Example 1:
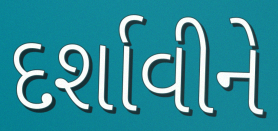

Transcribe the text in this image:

દર્શાવીને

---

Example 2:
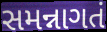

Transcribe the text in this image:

સમન્નાગતં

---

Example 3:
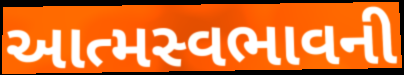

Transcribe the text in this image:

આત્મસ્વભાવની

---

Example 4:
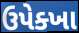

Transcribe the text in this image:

ઉપેક્ખા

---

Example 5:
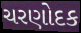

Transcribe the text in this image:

ચરણોદક